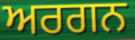
ਅਰਗਨ